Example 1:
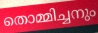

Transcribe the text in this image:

തൊമ്മിച്ചനും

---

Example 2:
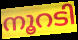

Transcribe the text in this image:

നൂറടി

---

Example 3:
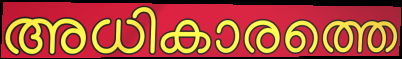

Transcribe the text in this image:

അധികാരത്തെ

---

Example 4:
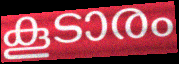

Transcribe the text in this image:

കൂടാരം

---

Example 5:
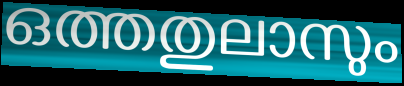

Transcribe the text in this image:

ഒത്തതുലാസും